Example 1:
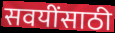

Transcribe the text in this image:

सवयींसाठी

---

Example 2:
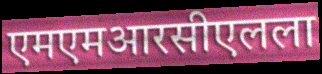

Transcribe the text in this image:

एमएमआरसीएलला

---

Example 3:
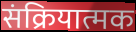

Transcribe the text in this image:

संक्रियात्मक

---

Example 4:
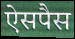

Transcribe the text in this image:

ऐसपैस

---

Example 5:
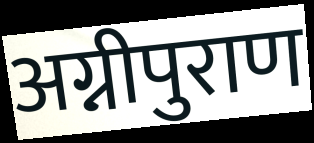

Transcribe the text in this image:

अग्नीपुराण